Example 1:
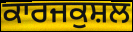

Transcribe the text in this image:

ਕਾਰਜਕੁਸ਼ਲ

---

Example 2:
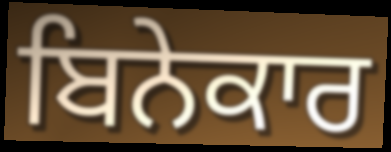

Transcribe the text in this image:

ਬਿਨੇਕਾਰ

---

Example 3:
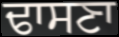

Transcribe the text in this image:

ਢਾਸਣਾ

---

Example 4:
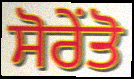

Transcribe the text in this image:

ਸੋਰੇਂਤੋ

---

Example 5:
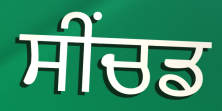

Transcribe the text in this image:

ਸੀਂਚਡ